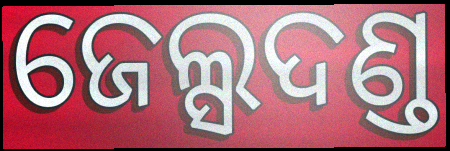
ଜେଲ୍ସଦଣ୍ଡ